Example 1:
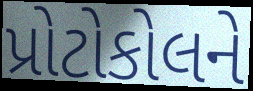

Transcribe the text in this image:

પ્રોટોકોલને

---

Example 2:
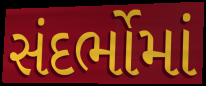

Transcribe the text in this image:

સંદર્ભોમાં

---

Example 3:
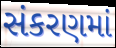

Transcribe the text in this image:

સંકરણમાં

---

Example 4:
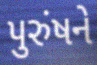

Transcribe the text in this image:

પુરુંષને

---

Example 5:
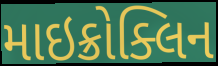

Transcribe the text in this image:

માઇક્રોક્લિન